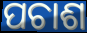
ପଚାଶ